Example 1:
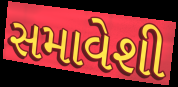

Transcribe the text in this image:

સમાવેશી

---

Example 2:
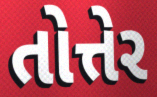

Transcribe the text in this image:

તોત્તેર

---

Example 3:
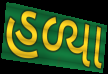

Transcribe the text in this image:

હળ્યા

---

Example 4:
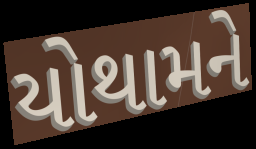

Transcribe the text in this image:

યોથામને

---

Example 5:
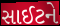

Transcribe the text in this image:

સાઈટને